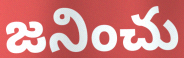
జనించు